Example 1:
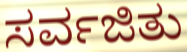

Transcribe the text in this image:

ಸರ್ವಜಿತು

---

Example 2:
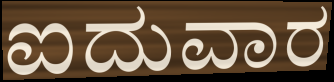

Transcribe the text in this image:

ಐದುವಾರ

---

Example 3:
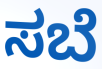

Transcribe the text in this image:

ಸಬೆ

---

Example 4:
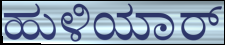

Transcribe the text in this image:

ಹುಳಿಯಾರ್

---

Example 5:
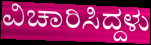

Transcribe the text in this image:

ವಿಚಾರಿಸಿದ್ದಳು